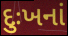
દુઃખનાં